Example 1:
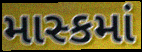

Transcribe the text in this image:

માસ્કમાં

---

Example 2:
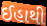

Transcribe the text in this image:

ઈહાથી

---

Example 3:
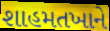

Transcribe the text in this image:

શાહમતખાને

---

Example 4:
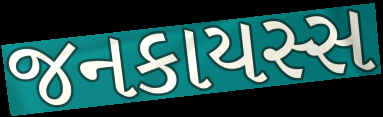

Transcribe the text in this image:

જનકાયસ્સ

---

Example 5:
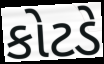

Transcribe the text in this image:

કોટડે